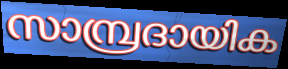
സാമ്പ്രദായിക